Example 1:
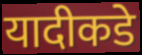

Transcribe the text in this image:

यादीकडे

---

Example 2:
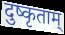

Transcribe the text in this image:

दुष्कृताम्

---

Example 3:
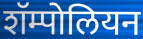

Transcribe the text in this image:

शॅम्पोलियन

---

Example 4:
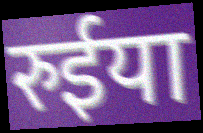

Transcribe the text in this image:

रुईया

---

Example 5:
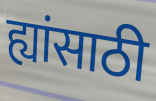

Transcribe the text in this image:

ह्यांसाठी